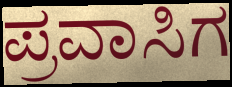
ಪ್ರವಾಸಿಗ